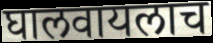
घालवायलाच